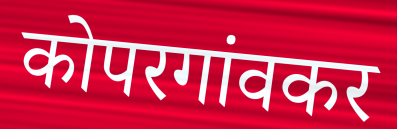
कोपरगांवकर